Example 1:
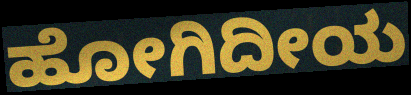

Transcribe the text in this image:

ಹೋಗಿದೀಯ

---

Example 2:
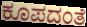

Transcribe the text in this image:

ಕೂಪದಂತೆ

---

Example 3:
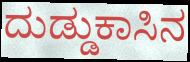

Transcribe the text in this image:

ದುಡ್ಡುಕಾಸಿನ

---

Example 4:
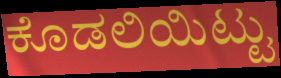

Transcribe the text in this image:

ಕೊಡಲಿಯಿಟ್ಟು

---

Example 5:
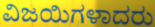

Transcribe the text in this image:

ವಿಜಯಿಗಳಾದರು